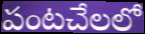
పంటచేలలో